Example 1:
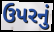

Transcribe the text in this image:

ઉપરનું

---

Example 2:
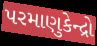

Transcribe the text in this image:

પરમાણુકેન્દ્રો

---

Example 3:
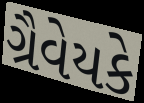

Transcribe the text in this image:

ગ્રૈવેયકે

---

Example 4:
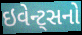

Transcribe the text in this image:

ઇવેન્ટ્સનો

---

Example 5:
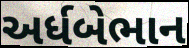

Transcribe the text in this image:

અર્ધબેભાન